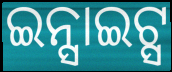
ଇନ୍ସାଇଟ୍ସ